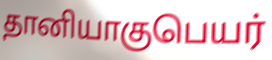
தானியாகுபெயர்